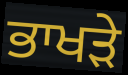
ਭਾਖੜੇ